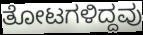
ತೋಟಗಳಿದ್ದವು